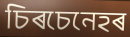
চিৰচেনেহৰ